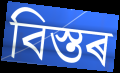
বিস্তৰ